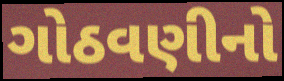
ગોઠવણીનો